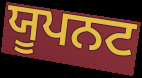
ਯੂਪਨਟ